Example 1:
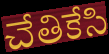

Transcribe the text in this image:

చేతికేసి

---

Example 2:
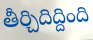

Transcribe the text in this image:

తీర్చిదిద్దింది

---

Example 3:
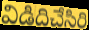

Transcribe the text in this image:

విడిదిచేసిరి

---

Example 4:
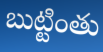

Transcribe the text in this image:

బుట్టింతు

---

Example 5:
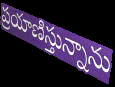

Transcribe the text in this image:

ప్రయాణిస్తున్నాను